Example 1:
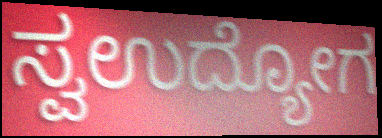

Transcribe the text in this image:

ಸ್ವಉದ್ಯೋಗ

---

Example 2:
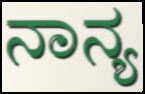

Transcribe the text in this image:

ನಾನ್ಯ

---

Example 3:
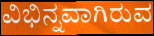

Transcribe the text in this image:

ವಿಭಿನ್ನವಾಗಿರುವ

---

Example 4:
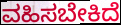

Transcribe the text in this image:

ವಹಿಸಬೇಕಿದೆ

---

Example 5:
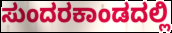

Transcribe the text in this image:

ಸುಂದರಕಾಂಡದಲ್ಲಿ